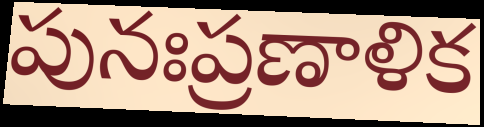
పునఃప్రణాళిక